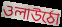
ওলাউঠো